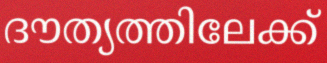
ദൗത്യത്തിലേക്ക്